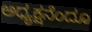
ಅಧ್ಯಕ್ಷನೆಂದೂ